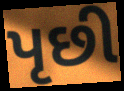
પૃછી